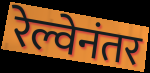
रेल्वेनंतर